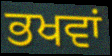
ਭਖਵਾਂ